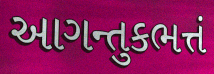
આગન્તુકભત્તં